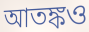
আতঙ্কও